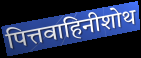
पित्तवाहिनीशोथ